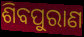
ଶିବପୁରାଣ